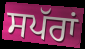
ਸਪੱਰਾਂ